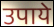
उपाये